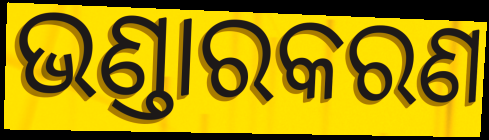
ଭଣ୍ଡାରକରଣ